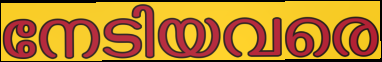
നേടിയവരെ